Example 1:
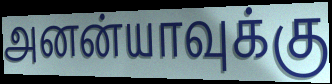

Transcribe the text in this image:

அனன்யாவுக்கு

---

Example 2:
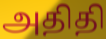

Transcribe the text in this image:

அதிதி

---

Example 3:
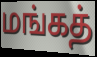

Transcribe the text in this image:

மங்கத்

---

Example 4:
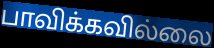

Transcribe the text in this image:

பாவிக்கவில்லை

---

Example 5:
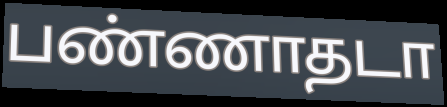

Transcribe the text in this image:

பண்ணாதடா